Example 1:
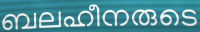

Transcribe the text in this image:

ബലഹീനരുടെ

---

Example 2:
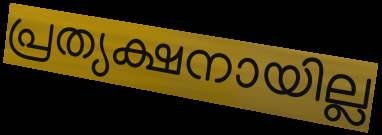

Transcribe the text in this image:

പ്രത്യക്ഷനായില്ല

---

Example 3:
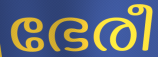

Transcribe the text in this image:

ഭേരീ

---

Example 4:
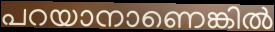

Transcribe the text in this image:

പറയാനാണെങ്കിൽ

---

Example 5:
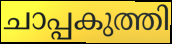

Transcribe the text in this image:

ചാപ്പകുത്തി